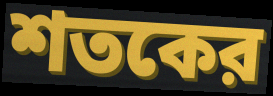
শতকের